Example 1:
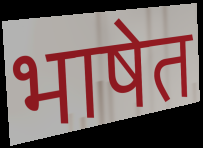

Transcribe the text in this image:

भाषेत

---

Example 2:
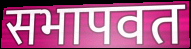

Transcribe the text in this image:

सभापवत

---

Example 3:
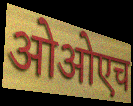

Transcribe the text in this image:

ओओएच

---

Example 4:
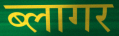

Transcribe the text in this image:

ब्लागर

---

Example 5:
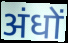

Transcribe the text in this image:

अंधों